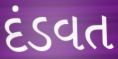
દંડવત